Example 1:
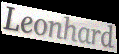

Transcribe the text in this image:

Leonhard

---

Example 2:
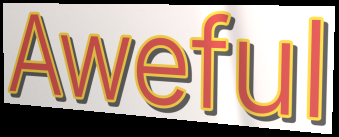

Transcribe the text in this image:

Aweful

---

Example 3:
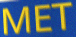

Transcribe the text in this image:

MET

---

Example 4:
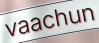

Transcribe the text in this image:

vaachun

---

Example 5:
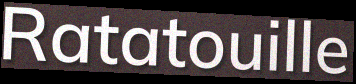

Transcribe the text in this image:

Ratatouille